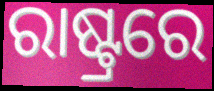
ରାଷ୍ଟ୍ରରେ